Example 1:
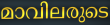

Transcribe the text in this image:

മാവിലരുടെ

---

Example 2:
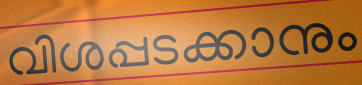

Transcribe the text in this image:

വിശപ്പടക്കാനും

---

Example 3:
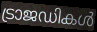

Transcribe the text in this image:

ട്രാജഡികൾ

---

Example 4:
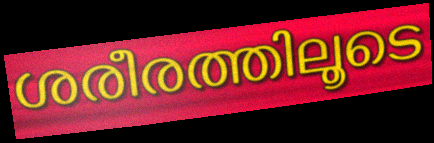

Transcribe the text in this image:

ശരീരത്തിലൂടെ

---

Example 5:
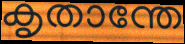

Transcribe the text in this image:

കൃതാന്തേ